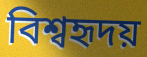
বিশ্বহৃদয়